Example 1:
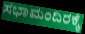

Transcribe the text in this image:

ಸಭಾಮಂದಿರಕ್ಕೆ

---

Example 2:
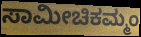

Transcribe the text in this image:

ಸಾಮೀಚಿಕಮ್ಮಂ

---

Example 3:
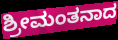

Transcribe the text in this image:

ಶ್ರೀಮಂತನಾದ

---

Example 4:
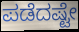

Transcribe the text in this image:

ಪಡೆದಷ್ಟೇ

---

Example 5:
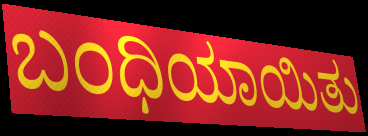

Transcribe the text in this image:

ಬಂಧಿಯಾಯಿತು